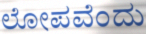
ಲೋಪವೆಂದು